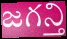
జగన్తి